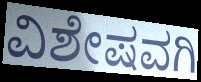
ವಿಶೇಷವಗಿ